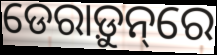
ଡେରାଡ଼ୁନ୍‌ରେ